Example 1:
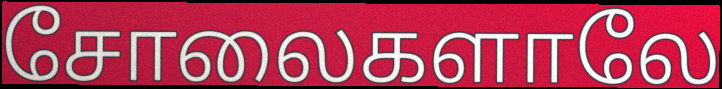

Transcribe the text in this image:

சோலைகளாலே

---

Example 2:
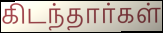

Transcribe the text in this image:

கிடந்தார்கள்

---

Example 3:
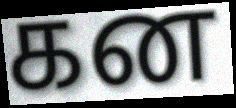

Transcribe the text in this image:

கன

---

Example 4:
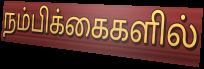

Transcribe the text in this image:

நம்பிக்கைகளில்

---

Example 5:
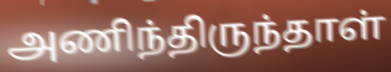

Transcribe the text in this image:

அணிந்திருந்தாள்